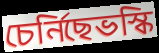
চেৰ্নিছেভস্কি